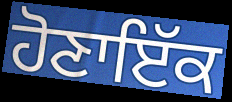
ਹੋਣਾਇੱਕ